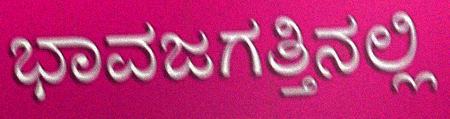
ಭಾವಜಗತ್ತಿನಲ್ಲಿ